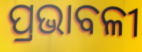
ପ୍ରଭାବଳୀ